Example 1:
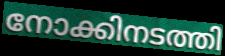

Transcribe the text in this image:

നോക്കിനടത്തി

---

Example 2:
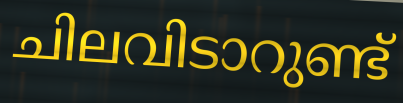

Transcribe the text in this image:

ചിലവിടാറുണ്ട്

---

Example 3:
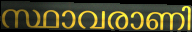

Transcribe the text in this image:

സ്ഥാവരാണി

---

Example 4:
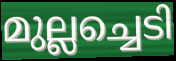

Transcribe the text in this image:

മുല്ലച്ചെടി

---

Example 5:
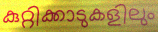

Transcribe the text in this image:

കുറ്റിക്കാടുകളിലും